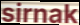
sirnak